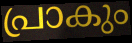
പ്രാകും